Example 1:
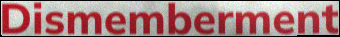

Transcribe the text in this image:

Dismemberment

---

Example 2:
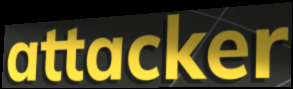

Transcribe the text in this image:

attacker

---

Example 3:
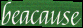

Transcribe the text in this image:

beacause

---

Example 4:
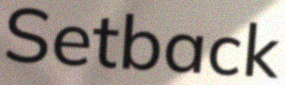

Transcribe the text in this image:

Setback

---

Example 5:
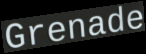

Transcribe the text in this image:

Grenade